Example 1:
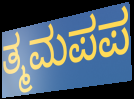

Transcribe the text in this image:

ತ್ಮಮಪಪ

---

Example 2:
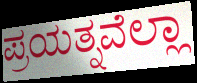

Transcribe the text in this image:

ಪ್ರಯತ್ನವೆಲ್ಲಾ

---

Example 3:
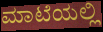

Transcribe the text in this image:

ಮಾಟೆಯಲ್ಲಿ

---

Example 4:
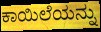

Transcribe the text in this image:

ಕಾಯಿಲೆಯನ್ನು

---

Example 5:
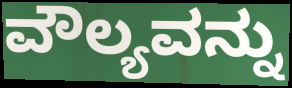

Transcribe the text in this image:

ವೌಲ್ಯವನ್ನು